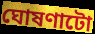
ঘোষণাটো